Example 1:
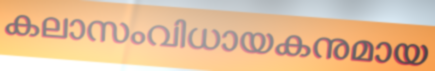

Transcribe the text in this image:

കലാസംവിധായകനുമായ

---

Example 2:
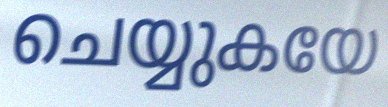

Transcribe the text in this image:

ചെയ്യുകയേ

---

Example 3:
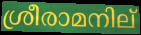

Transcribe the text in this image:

ശ്രീരാമനില്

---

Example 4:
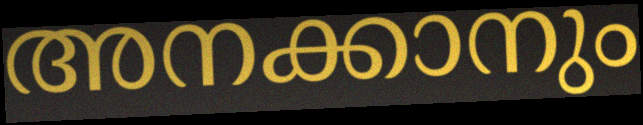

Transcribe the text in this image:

അനക്കാനും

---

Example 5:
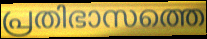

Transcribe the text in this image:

പ്രതിഭാസത്തെ